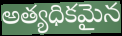
అత్యధికమైన